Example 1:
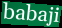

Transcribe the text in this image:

babaji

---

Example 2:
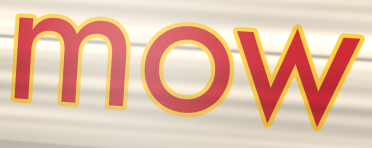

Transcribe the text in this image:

mow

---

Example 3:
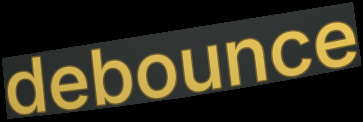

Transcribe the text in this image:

debounce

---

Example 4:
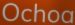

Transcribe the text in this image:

Ochoa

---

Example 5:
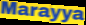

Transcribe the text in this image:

Marayya